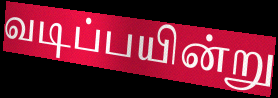
வடிப்பயின்று